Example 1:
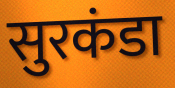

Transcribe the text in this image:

सुरकंडा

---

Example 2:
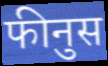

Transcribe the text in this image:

फीनुस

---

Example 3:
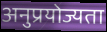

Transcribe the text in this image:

अनुप्रयोज्यता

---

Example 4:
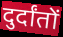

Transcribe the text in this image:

दुर्दांतों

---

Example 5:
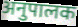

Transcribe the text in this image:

अनुपालक